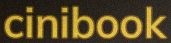
cinibook